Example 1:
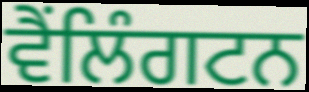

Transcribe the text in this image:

ਵੈਂਲਿੰਗਟਨ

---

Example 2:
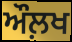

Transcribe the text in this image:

ਔਲ਼ਖ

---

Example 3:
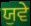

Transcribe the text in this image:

ਯੁਵੇ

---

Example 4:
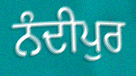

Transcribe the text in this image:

ਨੰਦੀਪੁਰ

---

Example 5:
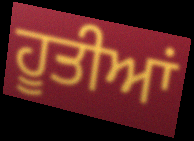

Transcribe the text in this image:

ਹੂਤੀਆਂ